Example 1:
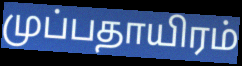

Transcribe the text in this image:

முப்பதாயிரம்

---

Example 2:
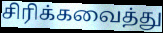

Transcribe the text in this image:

சிரிக்கவைத்து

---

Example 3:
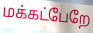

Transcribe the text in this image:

மக்கட்பேறே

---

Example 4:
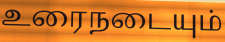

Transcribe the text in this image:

உரைநடையும்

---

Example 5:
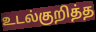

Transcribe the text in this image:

உடல்குறித்த